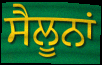
ਸੈਲੂਨਾਂ